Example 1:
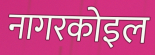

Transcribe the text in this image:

नागरकोइल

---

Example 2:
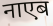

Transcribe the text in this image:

नाएब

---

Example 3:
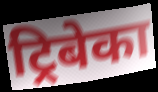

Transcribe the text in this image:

ट्रिबेका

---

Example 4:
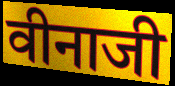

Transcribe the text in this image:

वीनाजी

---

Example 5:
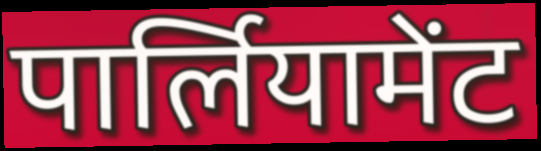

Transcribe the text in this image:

पार्लियामेंट